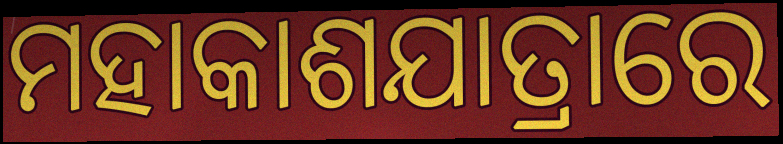
ମହାକାଶଯାତ୍ରାରେ